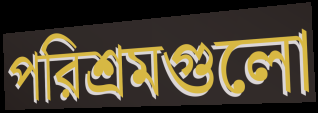
পরিশ্রমগুলো